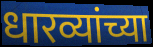
धारव्यांच्या